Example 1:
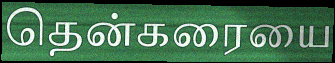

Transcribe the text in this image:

தென்கரையை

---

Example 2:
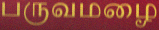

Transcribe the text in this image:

பருவமழை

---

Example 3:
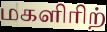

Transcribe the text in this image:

மகளிரிற்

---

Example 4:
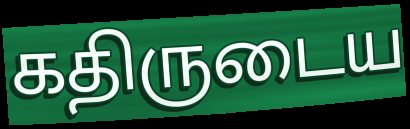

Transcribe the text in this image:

கதிருடைய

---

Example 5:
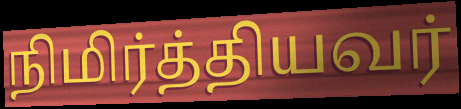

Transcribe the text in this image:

நிமிர்த்தியவர்